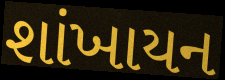
શાંખાયન